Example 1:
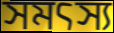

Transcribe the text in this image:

সমৎস্য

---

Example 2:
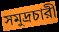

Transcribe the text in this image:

সমুদ্রচারী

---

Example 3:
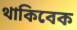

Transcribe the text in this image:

থাকিবেক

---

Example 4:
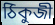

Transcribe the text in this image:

ঠিকুজী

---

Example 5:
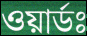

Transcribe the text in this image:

ওয়ার্ডঃ